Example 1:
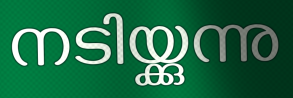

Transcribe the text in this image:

നടിയ്ക്കുന്നു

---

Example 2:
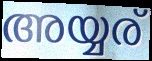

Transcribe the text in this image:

അയ്യര്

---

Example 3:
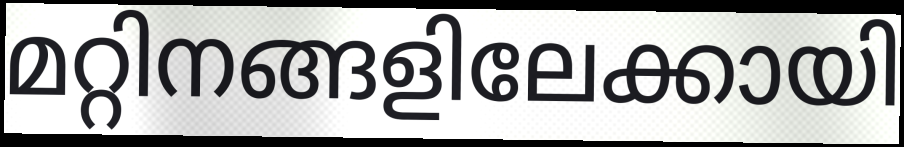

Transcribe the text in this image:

മറ്റിനങ്ങളിലേക്കായി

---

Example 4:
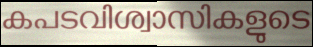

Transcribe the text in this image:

കപടവിശ്വാസികളുടെ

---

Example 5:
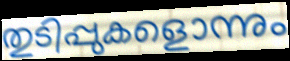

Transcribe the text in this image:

തുടിപ്പുകളൊന്നും